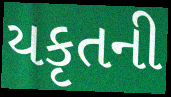
યકૃતની